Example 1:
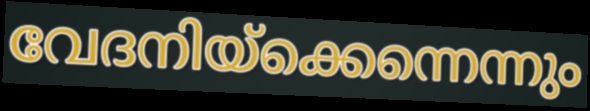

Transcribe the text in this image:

വേദനിയ്ക്കെന്നെന്നും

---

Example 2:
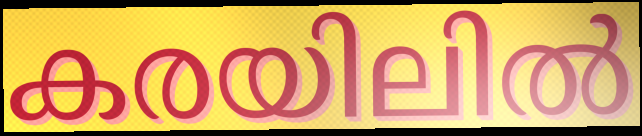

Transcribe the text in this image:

കരയിലിൽ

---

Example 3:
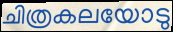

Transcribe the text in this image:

ചിത്രകലയോടു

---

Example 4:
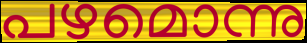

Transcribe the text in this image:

പഴമൊന്നു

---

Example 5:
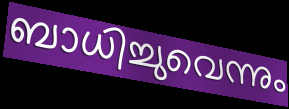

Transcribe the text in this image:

ബാധിച്ചുവെന്നും